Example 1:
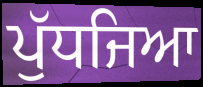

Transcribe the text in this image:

ਪੁੱਧਜਿਆ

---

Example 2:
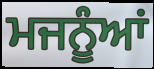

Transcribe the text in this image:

ਮਜਨੂੰਆਂ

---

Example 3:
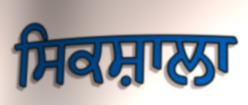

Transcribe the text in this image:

ਸਿਕਸ਼ਾਲਾ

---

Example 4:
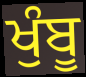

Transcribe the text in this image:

ਖੁੰਬੂ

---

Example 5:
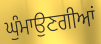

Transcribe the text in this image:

ਘੁੰਮਾਉਣਗੀਆਂ